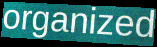
organized